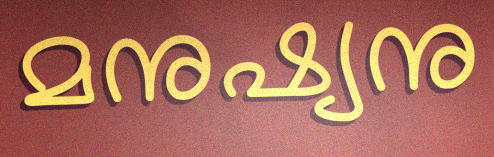
മനുഷ്യനു